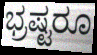
ಭ್ರಷ್ಟರೂ